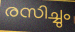
രസിച്ചും